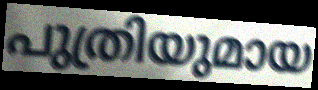
പുത്രിയുമായ